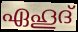
ഏഹൂദ്